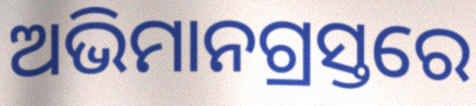
ଅଭିମାନଗ୍ରସ୍ତରେ